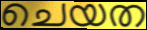
ചെയത